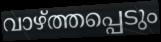
വാഴ്ത്തപ്പെടും